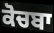
ਕੋਚਬਾ